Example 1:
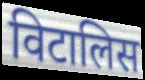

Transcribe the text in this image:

विटालिस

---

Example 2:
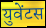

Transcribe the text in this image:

युवेंटस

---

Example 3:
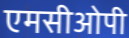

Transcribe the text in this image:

एमसीओपी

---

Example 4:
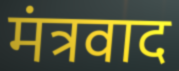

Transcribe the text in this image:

मंत्रवाद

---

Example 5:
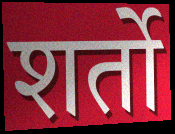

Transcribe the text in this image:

शर्तो